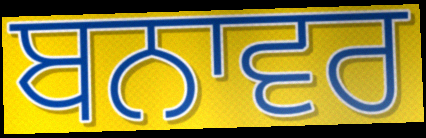
ਬਨਾਵਰ